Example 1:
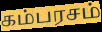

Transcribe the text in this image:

கம்பரசம்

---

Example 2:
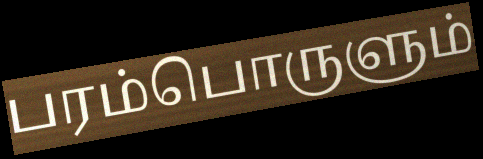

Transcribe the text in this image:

பரம்பொருளும்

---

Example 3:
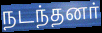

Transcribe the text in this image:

நடந்தனர்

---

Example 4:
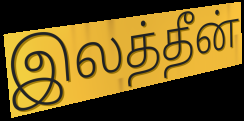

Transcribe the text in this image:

இலத்தீன்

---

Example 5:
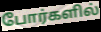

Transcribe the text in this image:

போர்களில்